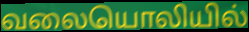
வலையொலியில்